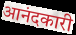
आनंदकारी